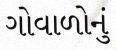
ગોવાળોનું